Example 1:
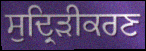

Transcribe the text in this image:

ਸੁਦ੍ਰਿੜੀਕਰਣ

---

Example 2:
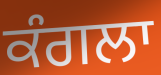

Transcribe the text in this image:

ਕੰਗਲਾ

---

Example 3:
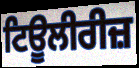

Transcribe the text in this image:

ਟਿਊਲੀਰੀਜ਼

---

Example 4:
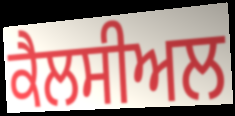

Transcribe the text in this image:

ਕੈਲਸੀਅਲ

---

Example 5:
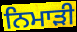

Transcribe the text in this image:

ਨਿਮਾੜੀ